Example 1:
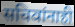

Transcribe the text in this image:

सचिवांनाही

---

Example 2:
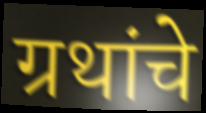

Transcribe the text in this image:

ग्रथांचे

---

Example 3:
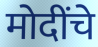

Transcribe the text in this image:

मोदींचे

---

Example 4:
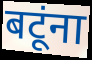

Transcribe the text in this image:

बटूंना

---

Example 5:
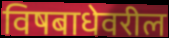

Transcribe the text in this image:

विषबाधेवरील